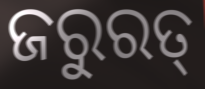
ଜରୁରତ୍